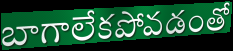
బాగాలేకపోవడంతో